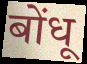
बोंधू